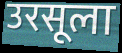
उरसूला